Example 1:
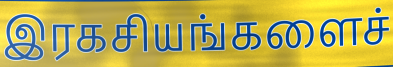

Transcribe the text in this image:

இரகசியங்களைச்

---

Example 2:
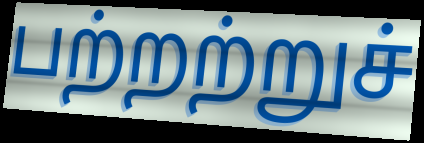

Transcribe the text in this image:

பற்றற்றுச்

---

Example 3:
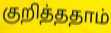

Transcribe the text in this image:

குறித்ததாம்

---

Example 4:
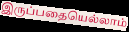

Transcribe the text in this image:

இருப்பதையெல்லாம்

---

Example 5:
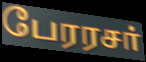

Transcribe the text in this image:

பேரரசர்